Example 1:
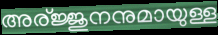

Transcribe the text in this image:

അര്ജ്ജുനനുമായുള്ള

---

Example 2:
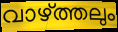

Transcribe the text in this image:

വാഴ്ത്തലും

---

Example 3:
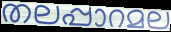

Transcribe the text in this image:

തലപ്പാറമല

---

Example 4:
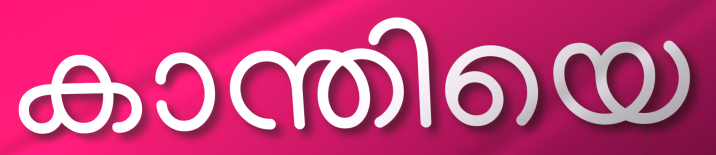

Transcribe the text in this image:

കാന്തിയെ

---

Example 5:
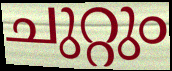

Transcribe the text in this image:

ചുറ്റും